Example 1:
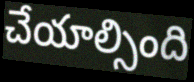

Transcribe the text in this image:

చేయాల్సింది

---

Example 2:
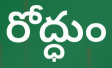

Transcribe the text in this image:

రోద్ధుం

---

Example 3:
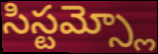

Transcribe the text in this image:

సిస్టమ్స్లో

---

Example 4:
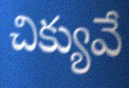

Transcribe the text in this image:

చిక్యువే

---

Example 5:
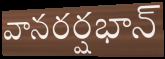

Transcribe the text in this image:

వానరర్షభాన్